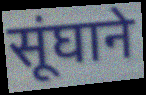
सूंघाने